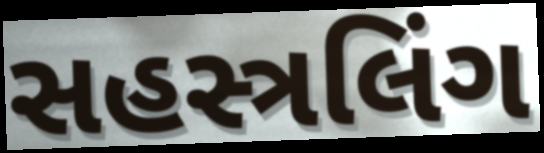
સહસ્ત્રલિંગ